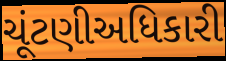
ચૂંટણીઅધિકારી